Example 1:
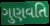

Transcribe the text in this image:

ગુણવતિ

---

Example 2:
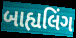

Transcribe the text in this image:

બાહ્યલિંગ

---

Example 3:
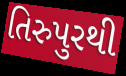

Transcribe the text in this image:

તિરુપુરથી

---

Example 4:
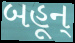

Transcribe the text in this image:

બહૂન્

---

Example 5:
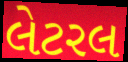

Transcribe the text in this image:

લેટરલ